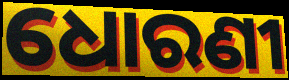
ଧୋରଣୀ